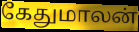
கேதுமாலன்